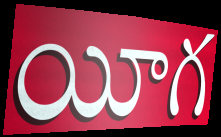
యీగ